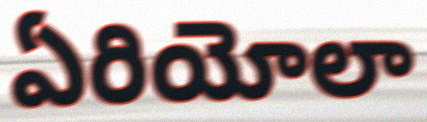
ఏరియోలా